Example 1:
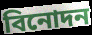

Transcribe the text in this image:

বিনোদন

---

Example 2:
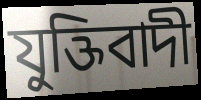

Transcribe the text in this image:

যুক্তিবাদী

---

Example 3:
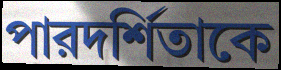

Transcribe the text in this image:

পারদর্শিতাকে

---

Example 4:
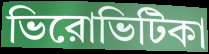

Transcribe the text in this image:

ভিরোভিটিকা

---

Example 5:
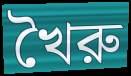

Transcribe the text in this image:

খৈরু